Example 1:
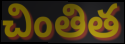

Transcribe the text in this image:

చింతిత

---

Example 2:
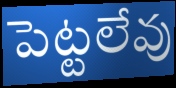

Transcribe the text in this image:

పెట్టలేవు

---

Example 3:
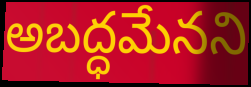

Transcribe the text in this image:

అబద్ధమేనని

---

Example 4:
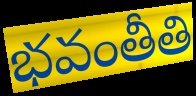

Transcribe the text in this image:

భవంతీతి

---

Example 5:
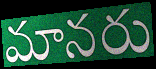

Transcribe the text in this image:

మానరు